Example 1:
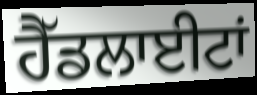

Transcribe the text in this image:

ਹੈੱਡਲਾਈਟਾਂ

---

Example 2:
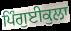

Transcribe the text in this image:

ਪਿੰਗੁਈਕੁਲਾ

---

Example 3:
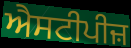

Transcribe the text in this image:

ਐਸਟੀਪੀਜ਼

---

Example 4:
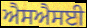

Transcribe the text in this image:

ਐਸਐਸਈ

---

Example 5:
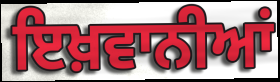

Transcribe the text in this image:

ਇਖ਼ਵਾਨੀਆਂ